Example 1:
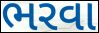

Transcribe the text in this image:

ભરવા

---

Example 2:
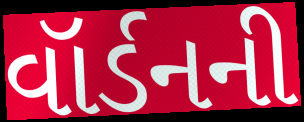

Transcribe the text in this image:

વૉર્ડનની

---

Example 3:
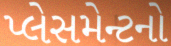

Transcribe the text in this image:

પ્લેસમેન્ટનો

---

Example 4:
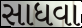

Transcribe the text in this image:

સાધવા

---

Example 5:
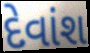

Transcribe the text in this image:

દેવાંશ